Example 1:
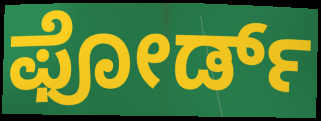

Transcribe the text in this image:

ಫೋರ್ಡ್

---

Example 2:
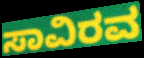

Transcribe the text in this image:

ಸಾವಿರವ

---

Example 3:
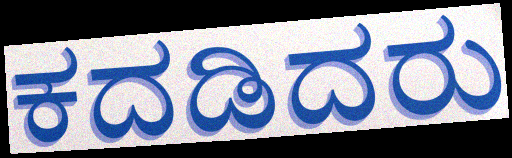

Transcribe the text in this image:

ಕದಡಿದರು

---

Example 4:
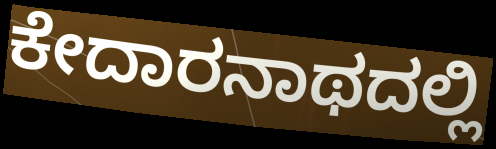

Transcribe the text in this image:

ಕೇದಾರನಾಥದಲ್ಲಿ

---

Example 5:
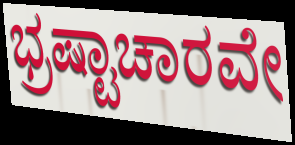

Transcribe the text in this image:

ಭ್ರಷ್ಟಾಚಾರವೇ